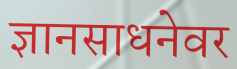
ज्ञानसाधनेवर